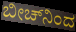
ಬೀಚ್‌ನಿಂದ